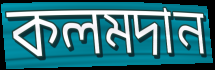
কলমদান